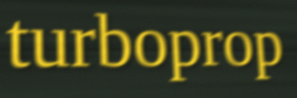
turboprop